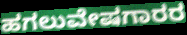
ಹಗಲುವೇಷಗಾರರ